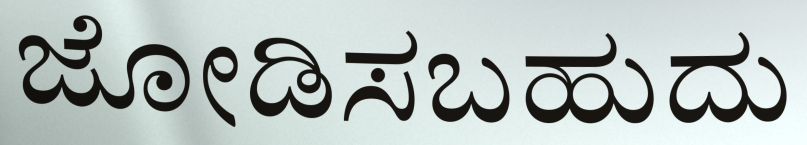
ಜೋಡಿಸಬಹುದು